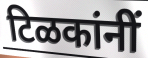
टिळकांनीं